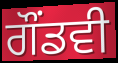
ਗੌਂਡਵੀ